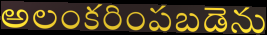
అలంకరింపబడెను